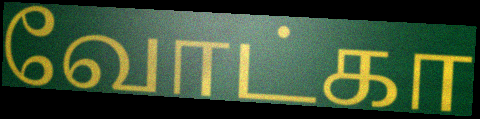
வோட்கா